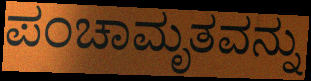
ಪಂಚಾಮೃತವನ್ನು